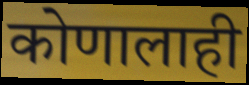
कोणालाही